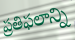
ప్రతిఫలాన్ని